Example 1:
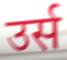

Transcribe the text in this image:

उर्स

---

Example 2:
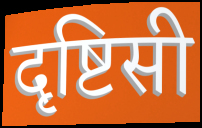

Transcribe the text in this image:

दृष्टिसी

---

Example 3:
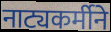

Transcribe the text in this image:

नाट्यकर्मीने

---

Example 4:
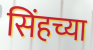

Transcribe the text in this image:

सिंहच्या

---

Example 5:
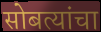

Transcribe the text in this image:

सोबत्यांचा